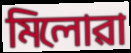
মিলোৱা